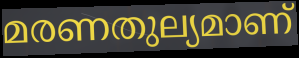
മരണതുല്യമാണ്